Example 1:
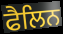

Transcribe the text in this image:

ਫੈਲਿਨ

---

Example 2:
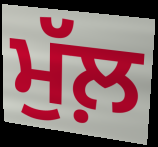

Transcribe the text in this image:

ਮੁੱਲ਼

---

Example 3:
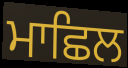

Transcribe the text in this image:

ਮਾਛਿਲ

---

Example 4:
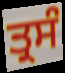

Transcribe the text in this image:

ਤ੍ਰਸੰ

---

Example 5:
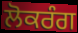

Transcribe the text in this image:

ਲੋਕਰੰਗ